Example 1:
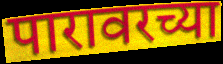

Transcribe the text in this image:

पारावरच्या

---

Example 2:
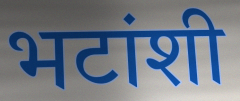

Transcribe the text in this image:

भटांशी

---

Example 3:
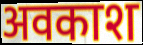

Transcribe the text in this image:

अवकाश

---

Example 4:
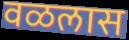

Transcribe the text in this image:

वळलास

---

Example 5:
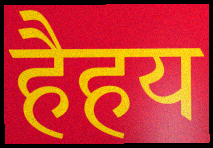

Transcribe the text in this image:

हैहय